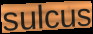
sulcus